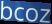
bcoz